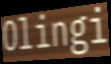
Olingi